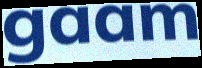
gaam